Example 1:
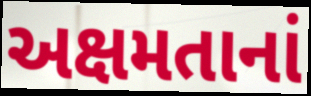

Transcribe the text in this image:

અક્ષમતાનાં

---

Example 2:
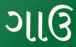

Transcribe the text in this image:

ગાઉ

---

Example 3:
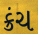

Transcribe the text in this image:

ક્રંચ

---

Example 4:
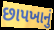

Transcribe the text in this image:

છાપખાનું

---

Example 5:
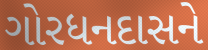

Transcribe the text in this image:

ગોરધનદાસને